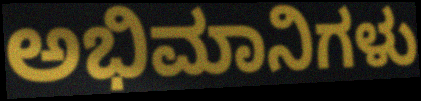
ಅಭಿಮಾನಿಗಳು